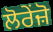
ਲੋਰੇਂਜ਼ੋ